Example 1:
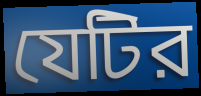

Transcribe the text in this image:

যেটির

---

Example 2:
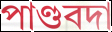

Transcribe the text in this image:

পাণ্ডবদা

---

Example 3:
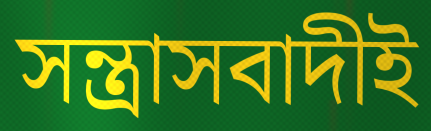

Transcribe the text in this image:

সন্ত্রাসবাদীই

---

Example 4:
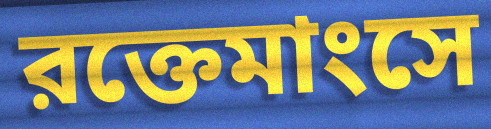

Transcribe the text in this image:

রক্তেমাংসে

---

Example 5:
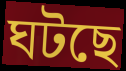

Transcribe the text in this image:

ঘটছে